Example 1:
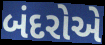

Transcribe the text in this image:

બંદરોએ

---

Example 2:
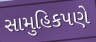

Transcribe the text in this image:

સામુહિકપણે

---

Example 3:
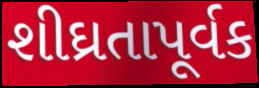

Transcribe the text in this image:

શીઘ્રતાપૂર્વક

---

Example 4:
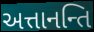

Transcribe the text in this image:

અત્તાનન્તિ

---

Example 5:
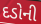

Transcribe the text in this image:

દડોની